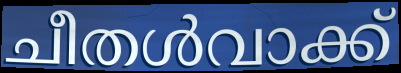
ചീതൾവാക്ക്